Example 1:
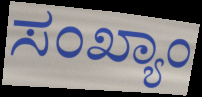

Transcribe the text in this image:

ಸಂಖ್ಯಾಂ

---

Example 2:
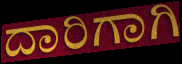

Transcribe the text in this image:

ದಾರಿಗಾಗಿ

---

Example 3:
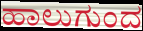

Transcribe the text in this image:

ಹಾಲುಗುಂದ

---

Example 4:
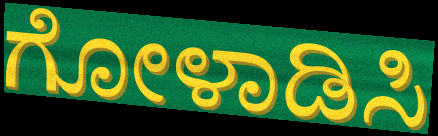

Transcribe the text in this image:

ಗೋಳಾಡಿಸಿ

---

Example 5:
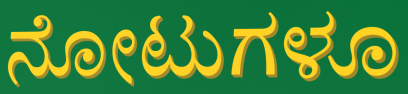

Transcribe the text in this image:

ನೋಟುಗಳೂ